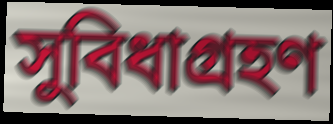
সুবিধাগ্রহণ